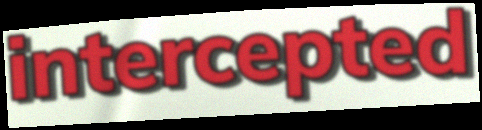
intercepted